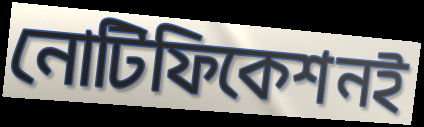
নোটিফিকেশনই